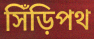
সিঁড়িপথ